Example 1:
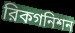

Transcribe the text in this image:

রিকগনিশন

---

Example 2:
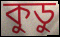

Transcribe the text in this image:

কুডু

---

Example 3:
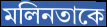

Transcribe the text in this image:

মলিনতাকে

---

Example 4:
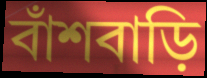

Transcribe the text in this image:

বাঁশবাড়ি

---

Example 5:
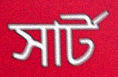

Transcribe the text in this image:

সার্ট